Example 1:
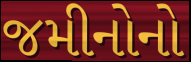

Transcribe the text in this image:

જમીનોનો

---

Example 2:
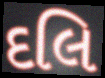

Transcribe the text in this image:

દલિ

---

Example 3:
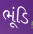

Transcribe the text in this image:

ભૂંડિ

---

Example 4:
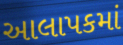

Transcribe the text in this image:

આલાપકમાં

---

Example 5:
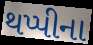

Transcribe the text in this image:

થપ્પીના